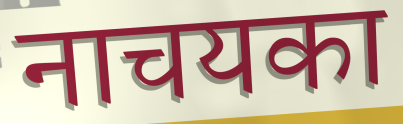
नाचयका